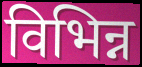
विभिन्न